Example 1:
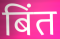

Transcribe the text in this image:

बिंत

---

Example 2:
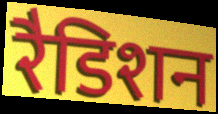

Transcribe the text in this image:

रैडिशन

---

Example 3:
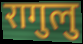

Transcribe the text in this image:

रागुलु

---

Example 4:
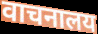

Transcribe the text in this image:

वाचनालय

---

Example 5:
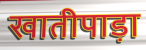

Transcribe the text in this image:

खातीपाड़ा